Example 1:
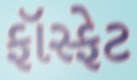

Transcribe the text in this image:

ફૉસ્ફેટ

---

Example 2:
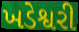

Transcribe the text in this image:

ખડેશ્વરી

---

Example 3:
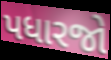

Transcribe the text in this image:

પધારજો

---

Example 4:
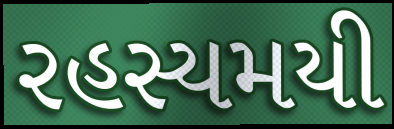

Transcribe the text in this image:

રહસ્યમયી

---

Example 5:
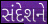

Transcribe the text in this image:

સંદેશને